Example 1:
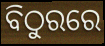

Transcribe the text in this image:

ବିଠୁରରେ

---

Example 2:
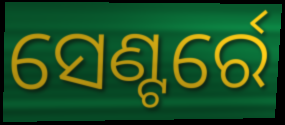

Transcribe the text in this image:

ସେଣ୍ଟର୍ରେ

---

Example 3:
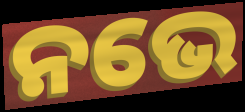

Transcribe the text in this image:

ନଭେ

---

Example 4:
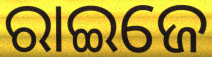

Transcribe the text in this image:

ରାଇଜେ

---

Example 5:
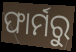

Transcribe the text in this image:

ଫାର୍ମରୁ